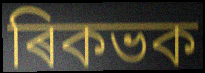
ৰিকভক